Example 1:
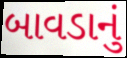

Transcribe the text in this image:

બાવડાનું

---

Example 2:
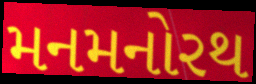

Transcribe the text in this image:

મનમનોરથ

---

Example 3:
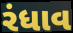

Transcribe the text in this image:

રંધાવ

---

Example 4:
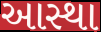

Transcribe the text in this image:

આસ્થા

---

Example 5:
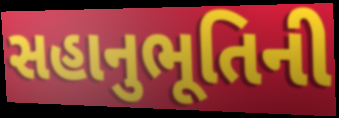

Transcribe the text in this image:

સહાનુભૂતિની